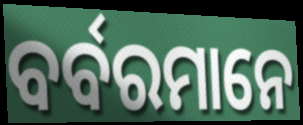
ବର୍ବରମାନେ